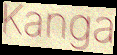
Kanga